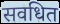
सवधित